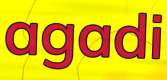
agadi